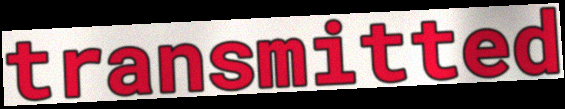
transmitted